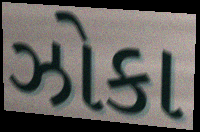
ઝોકા